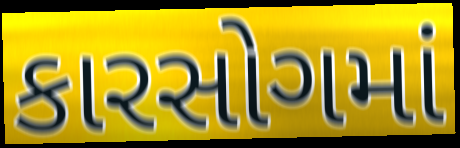
કારસોગમાં